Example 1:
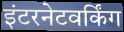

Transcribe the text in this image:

इंटरनेटवर्किंग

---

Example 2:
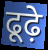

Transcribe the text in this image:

ढूढ़े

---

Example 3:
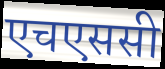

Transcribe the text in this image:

एचएससी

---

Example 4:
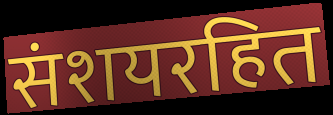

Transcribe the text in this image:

संशयरहित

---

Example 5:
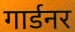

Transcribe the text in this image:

गार्डनर